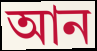
আন